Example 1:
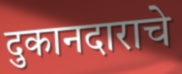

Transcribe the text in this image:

दुकानदाराचे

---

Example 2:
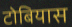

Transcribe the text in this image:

टोबियास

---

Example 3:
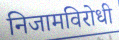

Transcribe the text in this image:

निजामविरोधी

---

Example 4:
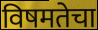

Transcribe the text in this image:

विषमतेचा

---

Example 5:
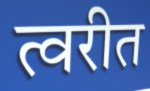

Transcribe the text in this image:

त्वरीत